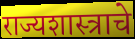
राज्यशास्त्राचे